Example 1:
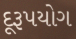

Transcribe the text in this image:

દૂરૂપયોગ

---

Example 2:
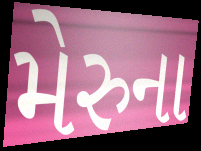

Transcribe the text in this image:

મેરુના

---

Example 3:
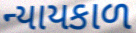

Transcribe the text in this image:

ન્યાયકાળ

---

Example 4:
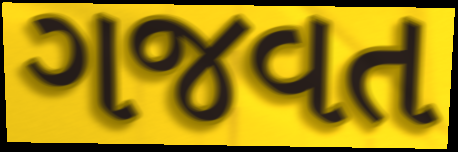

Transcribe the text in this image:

ગજવત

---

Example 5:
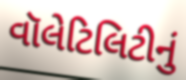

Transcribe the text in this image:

વૉલેટિલિટીનું